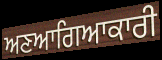
ਅਣਆਗਿਆਕਾਰੀ